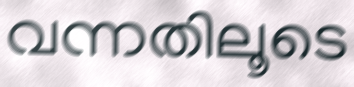
വന്നതിലൂടെ